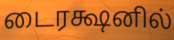
டைரக்ஷனில்